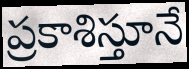
ప్రకాశిస్తూనే